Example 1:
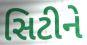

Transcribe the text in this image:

સિટીને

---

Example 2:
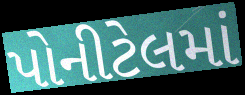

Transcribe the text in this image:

પોનીટેલમાં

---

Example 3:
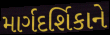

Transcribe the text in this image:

માર્ગદર્શિકાને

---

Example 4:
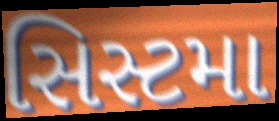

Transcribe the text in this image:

સિસ્ટમા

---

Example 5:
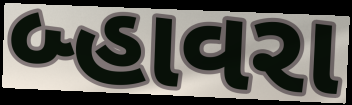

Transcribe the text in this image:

બ્હાવરા